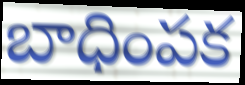
బాధింపక